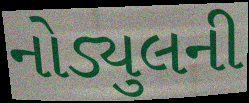
નોડ્યુલની